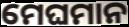
ମେଘମାନ